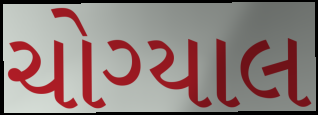
ચોગ્યાલ